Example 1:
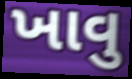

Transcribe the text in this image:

ખાવુ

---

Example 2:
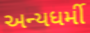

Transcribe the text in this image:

અન્યધર્મી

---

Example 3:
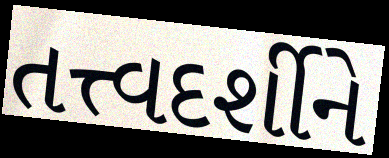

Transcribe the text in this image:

તત્ત્વદર્શીને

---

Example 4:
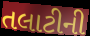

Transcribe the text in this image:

તલાટીની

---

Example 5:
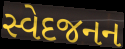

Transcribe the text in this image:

સ્વેદજનન